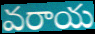
వరాయ